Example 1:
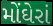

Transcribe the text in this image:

મોંઘેરાં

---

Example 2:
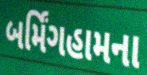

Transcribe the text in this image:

બર્મિંગહામના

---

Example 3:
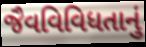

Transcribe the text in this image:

જૈવવિવિધતાનું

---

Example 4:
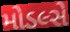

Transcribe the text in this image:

મોડલ્સે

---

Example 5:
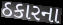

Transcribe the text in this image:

ઠકારના